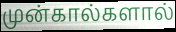
முன்கால்களால்